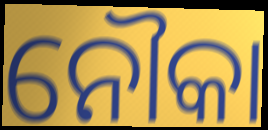
ନୌକା